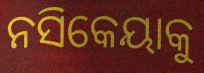
ନସିକେୟାକୁ